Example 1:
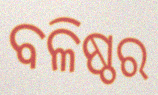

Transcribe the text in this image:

ବଳିଷ୍ଠର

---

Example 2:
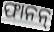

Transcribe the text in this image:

ଫାନନ୍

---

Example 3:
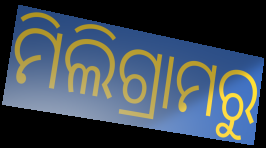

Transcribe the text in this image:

ମିଲିଗ୍ରାମରୁ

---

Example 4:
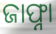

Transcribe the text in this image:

ଜାଫ୍ନା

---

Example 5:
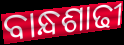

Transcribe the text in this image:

ବାନ୍ଧଶାଢୀ